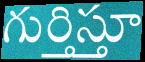
గుర్తిస్తూ